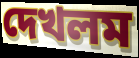
দেখলম